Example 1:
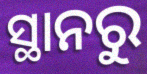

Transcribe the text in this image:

ସ୍ଥାନରୁ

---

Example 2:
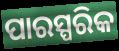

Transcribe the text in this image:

ପାରସ୍ପରିକ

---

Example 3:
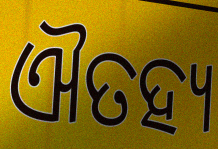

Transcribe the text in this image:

ଐତହ୍ୟ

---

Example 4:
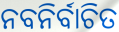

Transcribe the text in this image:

ନବନିର୍ବାଚିତ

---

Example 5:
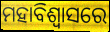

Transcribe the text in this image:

ମହାବିଶ୍ୱାସରେ